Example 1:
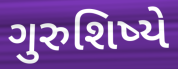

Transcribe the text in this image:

ગુરુશિષ્યે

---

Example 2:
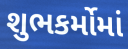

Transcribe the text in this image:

શુભકર્મોમાં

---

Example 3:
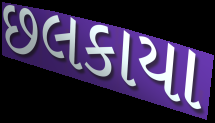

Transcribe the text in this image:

છલકાયા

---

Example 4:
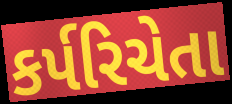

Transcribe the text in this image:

કર્પરિચેતા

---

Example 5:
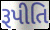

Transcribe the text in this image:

રૂપીતિ